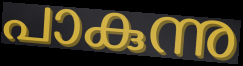
പാകുന്നു